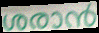
ശരാൻ